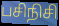
பசிநிசி